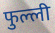
फुल्ली